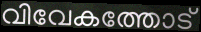
വിവേകത്തോട്